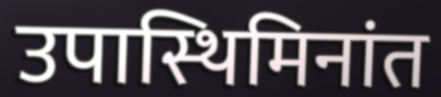
उपास्थिमिनांत